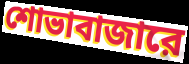
শোভাবাজারে